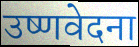
उष्णवेदना